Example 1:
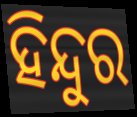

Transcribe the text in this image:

ହିନ୍ଦୁର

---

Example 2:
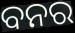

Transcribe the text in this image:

ବନର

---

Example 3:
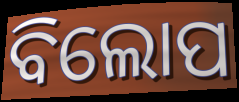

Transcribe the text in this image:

ବିଲୋପ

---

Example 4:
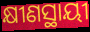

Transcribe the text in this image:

କ୍ଷୀଣସ୍ଥାୟୀ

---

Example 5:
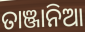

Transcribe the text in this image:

ତାଞ୍ଜାନିଆ